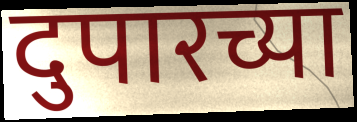
दुपारच्या